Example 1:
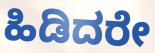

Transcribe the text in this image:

ಹಿಡಿದರೇ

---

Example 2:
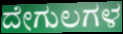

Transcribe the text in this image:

ದೇಗುಲಗಳ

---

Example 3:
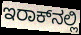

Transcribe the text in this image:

ಇರಾಕ್‍ನಲ್ಲಿ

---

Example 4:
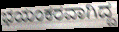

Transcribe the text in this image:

ಭಯಂಕರವಾಗಿದ್ದ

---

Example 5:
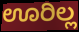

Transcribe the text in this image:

ಊರಿಲ್ಲ